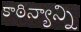
కాఠిన్యాన్ని